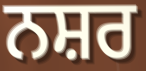
ਨਸ਼ਰ